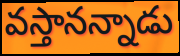
వస్తానన్నాడు